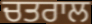
ਚਤਰਾਲ